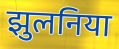
झुलनिया